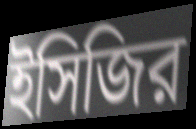
ইসিজির